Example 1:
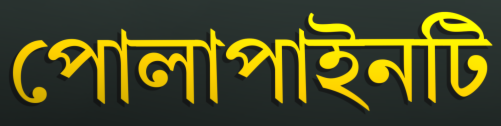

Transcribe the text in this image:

পোলাপাইনটি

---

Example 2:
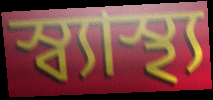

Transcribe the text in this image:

স্ব্যাস্থ্য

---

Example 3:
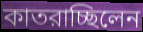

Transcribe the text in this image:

কাতরাচ্ছিলেন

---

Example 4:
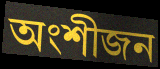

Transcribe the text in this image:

অংশীজন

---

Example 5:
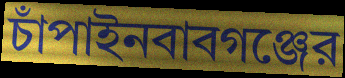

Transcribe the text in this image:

চাঁপাইনবাবগঞ্জের